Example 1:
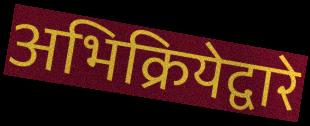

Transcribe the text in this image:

अभिक्रियेद्वारे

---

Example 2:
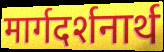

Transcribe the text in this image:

मार्गदर्शनार्थ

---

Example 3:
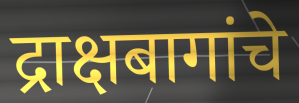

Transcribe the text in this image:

द्राक्षबागांचे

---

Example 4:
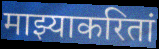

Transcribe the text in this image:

माझ्याकरितां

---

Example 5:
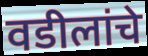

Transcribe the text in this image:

वडीलांचे